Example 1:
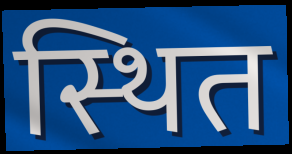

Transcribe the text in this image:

स्थित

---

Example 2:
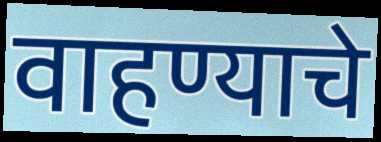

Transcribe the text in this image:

वाहण्याचे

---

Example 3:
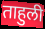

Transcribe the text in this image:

ताहुली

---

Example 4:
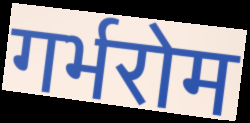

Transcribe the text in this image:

गर्भरोम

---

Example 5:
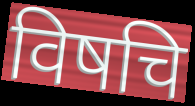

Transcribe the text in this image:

विषचि